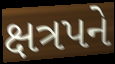
ક્ષત્રપને